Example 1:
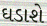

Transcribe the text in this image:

ઘડાશે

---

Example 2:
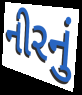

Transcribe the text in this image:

નીરનું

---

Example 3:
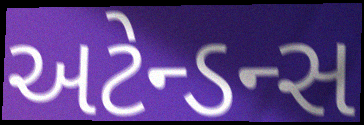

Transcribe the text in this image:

અટેન્ડન્સ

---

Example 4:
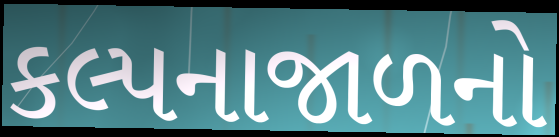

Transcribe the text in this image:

કલ્પનાજાળનો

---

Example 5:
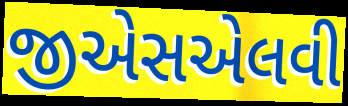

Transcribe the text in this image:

જીએસએલવી